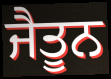
ਜੈਤੂਨ